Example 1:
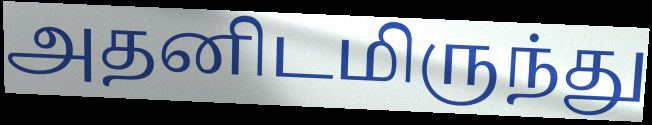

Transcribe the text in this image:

அதனிடமிருந்து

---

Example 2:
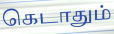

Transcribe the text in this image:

கெடாதும்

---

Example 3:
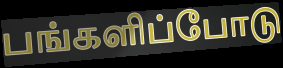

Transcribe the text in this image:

பங்களிப்போடு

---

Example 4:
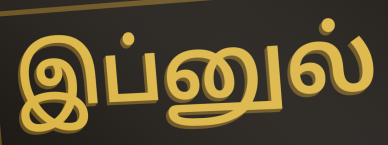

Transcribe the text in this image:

இப்னுல்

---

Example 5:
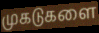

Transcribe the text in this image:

முகடுகளை